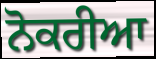
ਨੋਕਰੀਆ